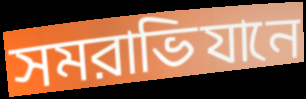
সমরাভিযানে